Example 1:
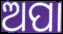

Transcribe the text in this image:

ଅପା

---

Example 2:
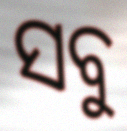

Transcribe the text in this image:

ସବୁ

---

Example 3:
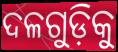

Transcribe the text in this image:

ଦଳଗୁଡ଼ିକୁ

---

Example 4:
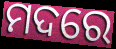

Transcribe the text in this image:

ମଦରେ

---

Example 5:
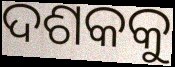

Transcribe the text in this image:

ଦଶକକୁ